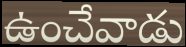
ఉంచేవాడు